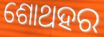
ଶୋଥହର